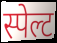
स्पेल्ट